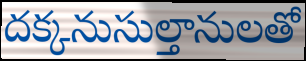
దక్కనుసుల్తానులతో